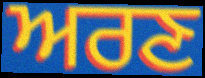
ਅਰਣ